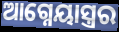
ଆଗ୍ନେୟାସ୍ତ୍ରର